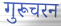
गुरूचरन